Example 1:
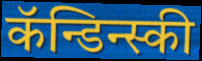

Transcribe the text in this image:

कॅन्डिन्स्की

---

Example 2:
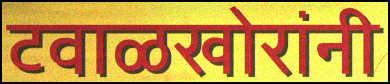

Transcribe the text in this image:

टवाळखोरांनी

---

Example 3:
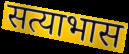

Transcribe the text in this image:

सत्याभास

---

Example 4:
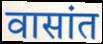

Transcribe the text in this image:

वासांत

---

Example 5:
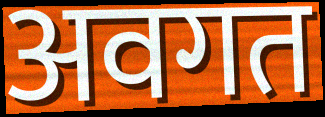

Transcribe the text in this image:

अवगत